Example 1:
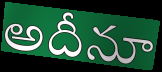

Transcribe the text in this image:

అదీనూ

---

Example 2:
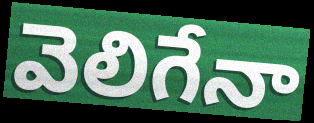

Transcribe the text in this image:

వెలిగేనా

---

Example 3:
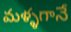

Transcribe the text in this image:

మళ్ళగానే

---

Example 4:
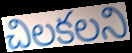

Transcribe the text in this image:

చిలకలని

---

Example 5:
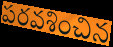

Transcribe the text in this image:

పరవశించిన